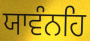
ਯਾਵੰਨਹਿ